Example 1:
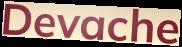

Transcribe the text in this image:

Devache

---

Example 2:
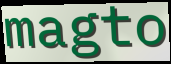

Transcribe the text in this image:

magto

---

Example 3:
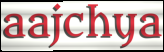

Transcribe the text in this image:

aajchya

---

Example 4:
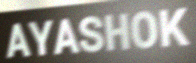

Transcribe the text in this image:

AYASHOK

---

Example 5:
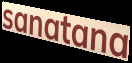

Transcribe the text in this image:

sanatana